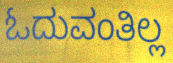
ಓದುವಂತಿಲ್ಲ